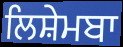
ਲਿਸ਼ੇਮਬਾ